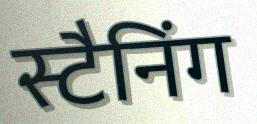
स्टैनिंग